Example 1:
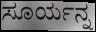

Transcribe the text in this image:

ಸೂರ್ಯನ್ನ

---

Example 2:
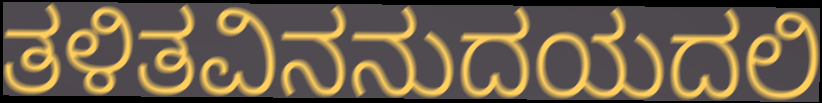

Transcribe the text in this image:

ತಳಿತವಿನನುದಯದಲಿ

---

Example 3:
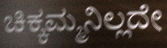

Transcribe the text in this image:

ಚಿಕ್ಕಮ್ಮನಿಲ್ಲದೇ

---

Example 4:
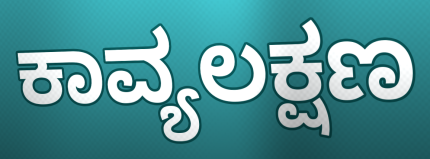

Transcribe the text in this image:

ಕಾವ್ಯಲಕ್ಷಣ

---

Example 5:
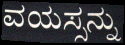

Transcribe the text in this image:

ವಯಸ್ಸನ್ನು